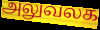
அலுவலக